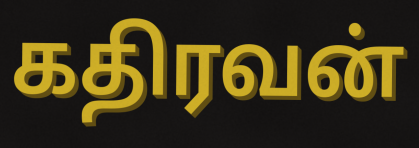
கதிரவன்